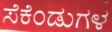
ಸೆಕೆಂಡುಗಳ